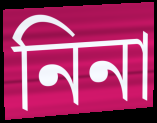
নিনা